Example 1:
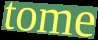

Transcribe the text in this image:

tome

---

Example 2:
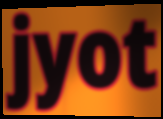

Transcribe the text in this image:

jyot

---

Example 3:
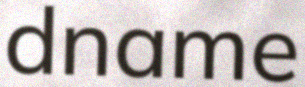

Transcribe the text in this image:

dname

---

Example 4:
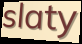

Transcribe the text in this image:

slaty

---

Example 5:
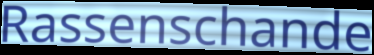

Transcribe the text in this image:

Rassenschande